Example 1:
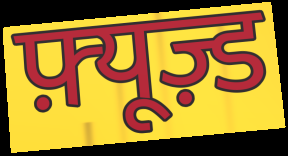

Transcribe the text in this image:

फ़्यूज़्ड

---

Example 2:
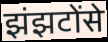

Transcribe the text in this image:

झंझटोंसे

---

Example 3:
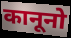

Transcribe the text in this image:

कानूनो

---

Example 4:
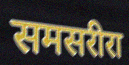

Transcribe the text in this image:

समसरीरा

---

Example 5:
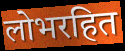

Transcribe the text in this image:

लोभरहित